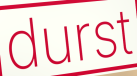
durst